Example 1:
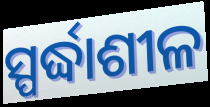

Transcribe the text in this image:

ସ୍ପର୍ଦ୍ଧାଶୀଳ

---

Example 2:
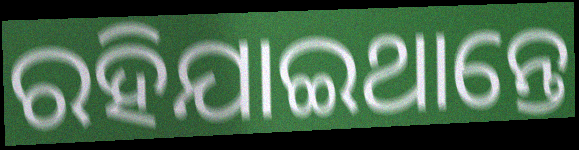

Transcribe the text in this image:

ରହିଯାଇଥାନ୍ତେ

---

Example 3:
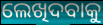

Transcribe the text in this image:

ଲେଖିଦବାକୁ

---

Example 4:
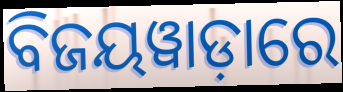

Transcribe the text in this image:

ବିଜୟୱାଡ଼ାରେ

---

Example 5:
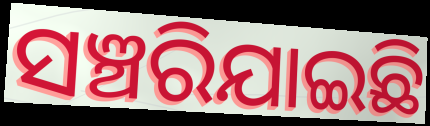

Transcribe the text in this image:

ସଞ୍ଚରିଯାଇଛି